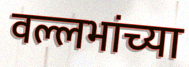
वल्लभांच्या